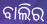
ବାଲିର